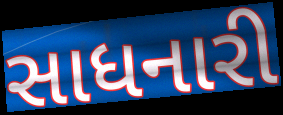
સાધનારી